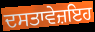
ਦਸਤਾਵੇਜ਼ਇਹ